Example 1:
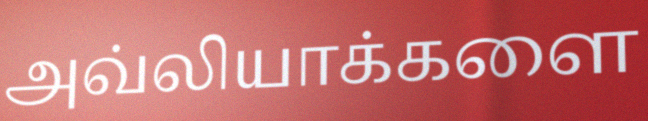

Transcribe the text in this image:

அவ்லியாக்களை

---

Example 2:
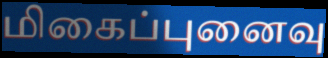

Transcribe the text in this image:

மிகைப்புனைவு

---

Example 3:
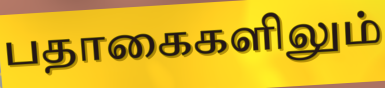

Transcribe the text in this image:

பதாகைகளிலும்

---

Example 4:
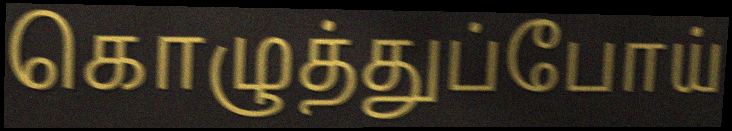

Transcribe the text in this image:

கொழுத்துப்போய்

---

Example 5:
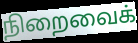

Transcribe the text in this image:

நிறைவைக்